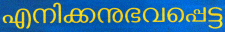
എനിക്കനുഭവപ്പെട്ട